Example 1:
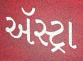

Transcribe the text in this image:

ઍસ્ટ્રા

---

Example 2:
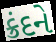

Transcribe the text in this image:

ક્રંદને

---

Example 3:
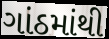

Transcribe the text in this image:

ગાંઠમાંથી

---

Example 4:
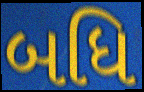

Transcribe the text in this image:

બધિ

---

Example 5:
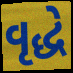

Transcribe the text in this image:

વૃદ્ધે